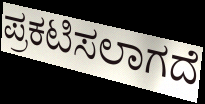
ಪ್ರಕಟಿಸಲಾಗದೆ